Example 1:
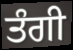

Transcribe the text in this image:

ਤੰਗੀ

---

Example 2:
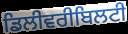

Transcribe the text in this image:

ਡਿਲੀਵਰੀਬਿਲਟੀ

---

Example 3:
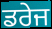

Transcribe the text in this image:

ਡਰੇਜ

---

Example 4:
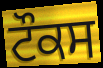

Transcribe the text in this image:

ਟੌਕਸ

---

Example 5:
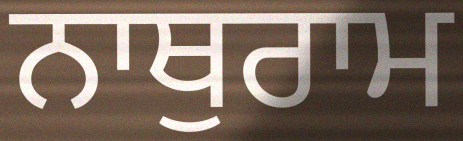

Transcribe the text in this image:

ਨਾਥੁਰਾਮ